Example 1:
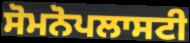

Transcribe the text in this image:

ਸੋਮਨੋਪਲਾਸਟੀ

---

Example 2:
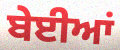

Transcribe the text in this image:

ਬੇਈਆਂ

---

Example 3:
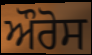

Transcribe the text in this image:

ਔਰੋਸ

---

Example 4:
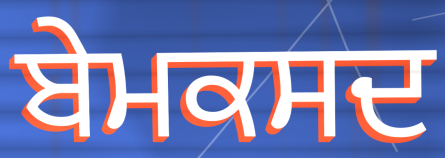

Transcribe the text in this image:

ਬੇਮਕਸਦ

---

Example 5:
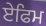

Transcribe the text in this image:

ਏਫਿਮ